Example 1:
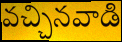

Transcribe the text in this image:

వచ్చినవాడి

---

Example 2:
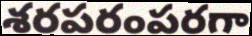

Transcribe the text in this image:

శరపరంపరగా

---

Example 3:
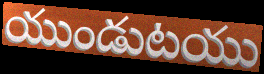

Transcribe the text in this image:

యుండుటయు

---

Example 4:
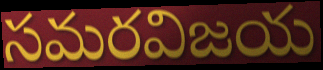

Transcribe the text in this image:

సమరవిజయ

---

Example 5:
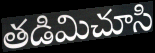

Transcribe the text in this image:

తడిమిచూసి